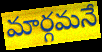
మార్గమనే